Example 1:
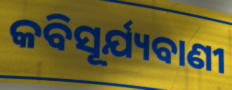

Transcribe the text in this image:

କବିସୂର୍ଯ୍ୟବାଣୀ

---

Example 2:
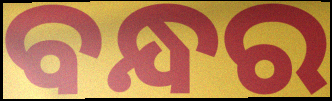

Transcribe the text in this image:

ବନ୍ଧର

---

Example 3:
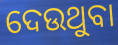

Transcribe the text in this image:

ଦେଉଥୁବା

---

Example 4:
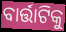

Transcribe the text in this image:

ବାର୍ତ୍ତାଟିକୁ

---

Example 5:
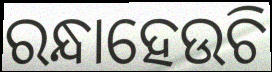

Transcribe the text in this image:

ରନ୍ଧାହେଉଚି